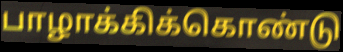
பாழாக்கிக்கொண்டு